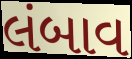
લંબાવ